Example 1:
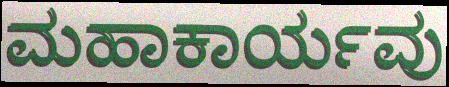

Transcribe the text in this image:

ಮಹಾಕಾರ್ಯವು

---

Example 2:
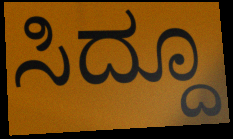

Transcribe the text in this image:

ಸಿದ್ದೂ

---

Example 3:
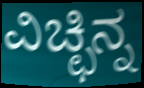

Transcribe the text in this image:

ವಿಚ್ಛಿನ್ನ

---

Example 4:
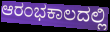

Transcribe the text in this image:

ಆರಂಭಕಾಲದಲ್ಲಿ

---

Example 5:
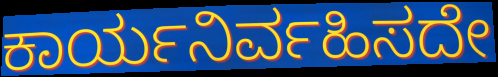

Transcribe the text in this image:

ಕಾರ್ಯನಿರ್ವಹಿಸದೇ